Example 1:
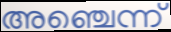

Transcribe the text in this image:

അഞ്ചെന്ന്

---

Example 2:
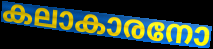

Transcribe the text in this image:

കലാകാരനോ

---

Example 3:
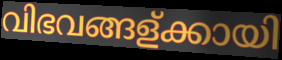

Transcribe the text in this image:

വിഭവങ്ങള്ക്കായി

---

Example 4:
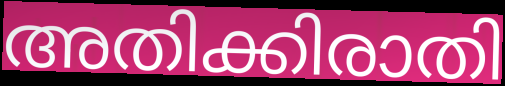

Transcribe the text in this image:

അതിക്കിരാതി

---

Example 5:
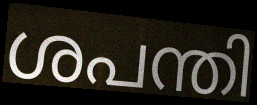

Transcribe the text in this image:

ശപന്തി